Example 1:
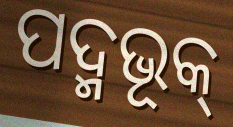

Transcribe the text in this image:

ପଦ୍ମଭୂକ୍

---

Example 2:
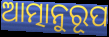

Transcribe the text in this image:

ଆତ୍ମାନୁରୂପ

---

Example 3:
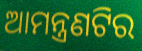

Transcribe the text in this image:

ଆମନ୍ତ୍ରଣଟିର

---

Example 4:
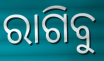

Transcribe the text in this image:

ରାଗିବୁ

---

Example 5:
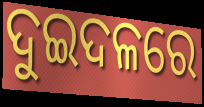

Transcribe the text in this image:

ଦୁଇଦଳରେ